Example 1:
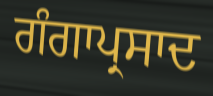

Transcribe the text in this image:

ਗੰਗਾਪ੍ਰਸਾਦ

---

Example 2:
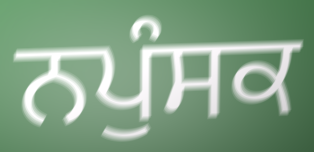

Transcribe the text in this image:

ਨਪੁੰਸਕ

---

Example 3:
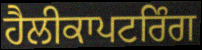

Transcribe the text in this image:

ਹੈਲੀਕਾਪਟਰਿੰਗ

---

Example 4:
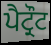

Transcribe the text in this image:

ਪੈਟ੍ਰੌਟ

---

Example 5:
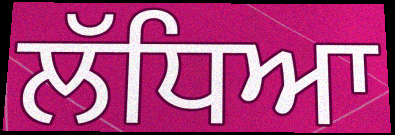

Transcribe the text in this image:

ਲੱਧਿਆ